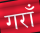
गराँ